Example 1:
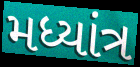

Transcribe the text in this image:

મધ્યાંત્ર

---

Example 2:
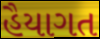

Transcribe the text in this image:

હૈયાગત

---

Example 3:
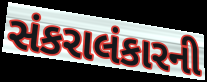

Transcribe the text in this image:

સંકરાલંકારની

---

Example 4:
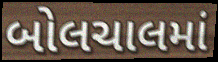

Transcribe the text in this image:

બોલચાલમાં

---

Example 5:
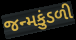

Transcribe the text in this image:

જન્મકુંડળી